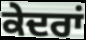
ਕੇਦਰਾਂ